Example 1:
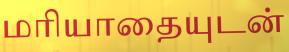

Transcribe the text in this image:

மரியாதையுடன்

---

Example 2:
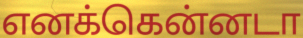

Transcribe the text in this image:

எனக்கென்னடா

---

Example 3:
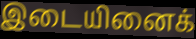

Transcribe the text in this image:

இடையினைக்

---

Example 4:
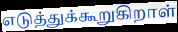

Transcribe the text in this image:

எடுத்துக்கூறுகிறாள்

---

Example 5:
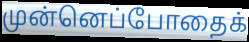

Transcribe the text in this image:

முன்னெப்போதைக்